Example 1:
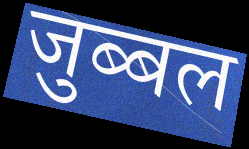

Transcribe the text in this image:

जुब्बल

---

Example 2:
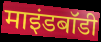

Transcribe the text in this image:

माइंडबॉडी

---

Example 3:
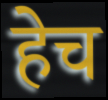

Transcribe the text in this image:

हेच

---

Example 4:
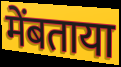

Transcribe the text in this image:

मेंबताया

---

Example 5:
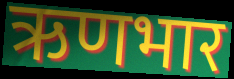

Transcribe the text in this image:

ऋणभार